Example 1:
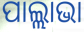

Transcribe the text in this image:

ପାଲ୍ଲାଭା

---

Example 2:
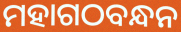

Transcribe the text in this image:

ମହାଗଠବନ୍ଧନ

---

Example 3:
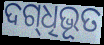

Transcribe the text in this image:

ଦଗ୍‍ଧିଭୂତ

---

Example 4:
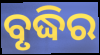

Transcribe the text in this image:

ବୃଦ୍ଧିର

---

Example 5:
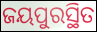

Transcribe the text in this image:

ଜୟପୁରସ୍ଥିତ